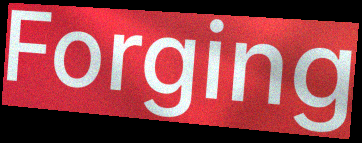
Forging